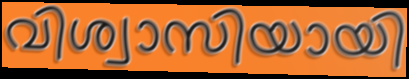
വിശ്വാസിയായി